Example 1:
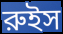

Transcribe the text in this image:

রুইস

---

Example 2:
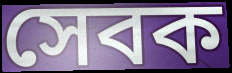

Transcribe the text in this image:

সেবক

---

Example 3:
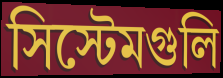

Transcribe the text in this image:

সিস্টেমগুলি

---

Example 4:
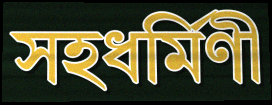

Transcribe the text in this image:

সহধর্মিণী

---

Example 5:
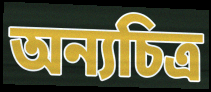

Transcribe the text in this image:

অন্যচিত্র